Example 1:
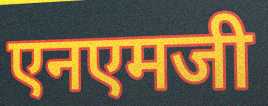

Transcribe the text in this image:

एनएमजी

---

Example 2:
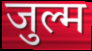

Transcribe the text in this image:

जुल्म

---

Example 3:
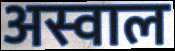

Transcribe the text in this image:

अस्वाल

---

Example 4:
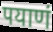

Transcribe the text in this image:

पयाणं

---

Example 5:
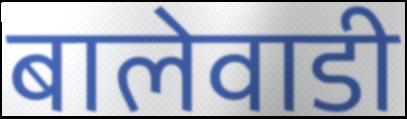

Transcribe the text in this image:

बालेवाडी